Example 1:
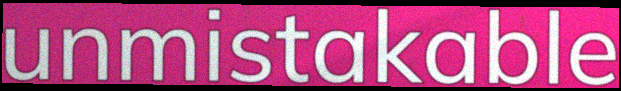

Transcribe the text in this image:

unmistakable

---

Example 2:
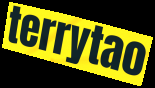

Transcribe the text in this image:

terrytao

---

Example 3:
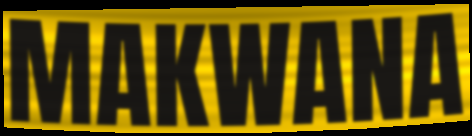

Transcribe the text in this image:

MAKWANA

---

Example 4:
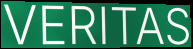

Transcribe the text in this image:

VERITAS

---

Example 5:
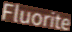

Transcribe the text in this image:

Fluorite